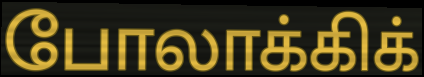
போலாக்கிக்